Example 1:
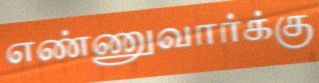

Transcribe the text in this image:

எண்ணுவார்க்கு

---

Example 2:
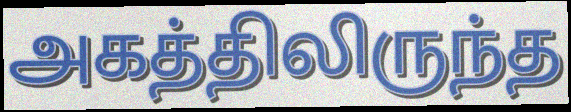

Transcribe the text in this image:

அகத்திலிருந்த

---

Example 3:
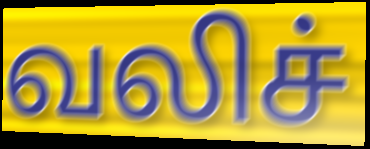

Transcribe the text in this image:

வலிச்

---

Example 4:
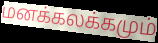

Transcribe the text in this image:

மனக்கலக்கமும்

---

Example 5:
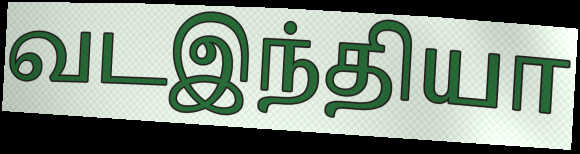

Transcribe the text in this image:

வடஇந்தியா